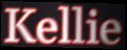
Kellie